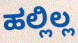
ಹಲ್ಲಿಲ್ಲ